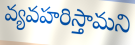
వ్యవహరిస్తామని